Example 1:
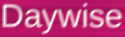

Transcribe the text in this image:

Daywise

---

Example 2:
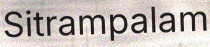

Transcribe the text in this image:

Sitrampalam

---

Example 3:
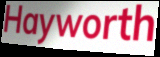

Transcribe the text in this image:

Hayworth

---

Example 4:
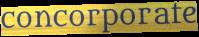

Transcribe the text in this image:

concorporate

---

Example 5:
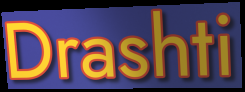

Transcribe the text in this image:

Drashti